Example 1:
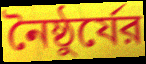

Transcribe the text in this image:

নৈষ্ঠুর্যের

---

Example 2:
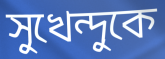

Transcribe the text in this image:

সুখেন্দুকে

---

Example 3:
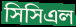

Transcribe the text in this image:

সিসিএল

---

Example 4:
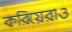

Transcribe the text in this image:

করিয়েরাও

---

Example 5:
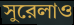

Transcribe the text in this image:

সুরেলাও